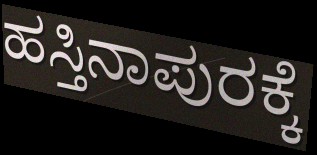
ಹಸ್ತಿನಾಪುರಕ್ಕೆ